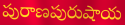
పురాణపురుషాయ